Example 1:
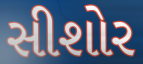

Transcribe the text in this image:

સીશોર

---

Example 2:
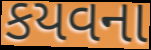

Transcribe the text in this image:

કયવના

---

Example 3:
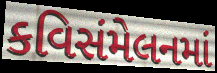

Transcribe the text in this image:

કવિસંમેલનમાં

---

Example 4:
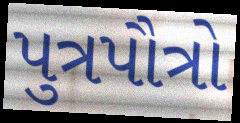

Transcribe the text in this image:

પુત્રપૌત્રો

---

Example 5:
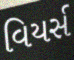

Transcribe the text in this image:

વિયર્સ